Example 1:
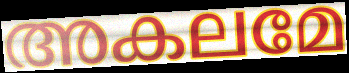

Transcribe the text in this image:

അകലമേ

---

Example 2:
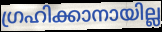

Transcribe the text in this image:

ഗ്രഹിക്കാനായില്ല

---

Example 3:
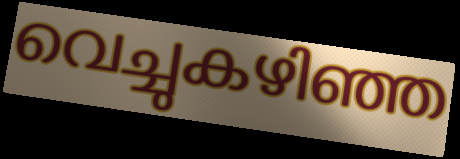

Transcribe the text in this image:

വെച്ചുകഴിഞ്ഞ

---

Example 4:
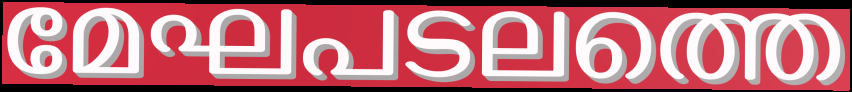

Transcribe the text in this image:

മേഘപടലത്തെ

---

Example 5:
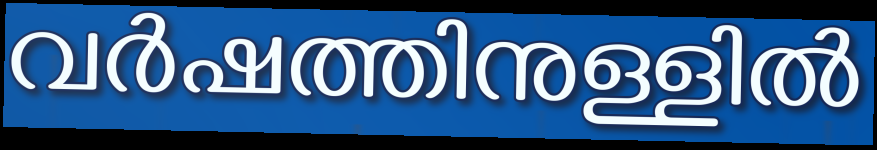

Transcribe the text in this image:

വർഷത്തിനുള്ളിൽ